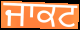
ਜਾਕਟ